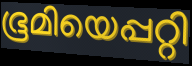
ഭൂമിയെപ്പറ്റി